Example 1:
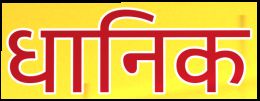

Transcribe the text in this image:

धानिक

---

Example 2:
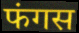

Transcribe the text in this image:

फंगस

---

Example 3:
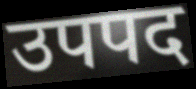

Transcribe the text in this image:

उपपद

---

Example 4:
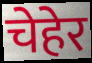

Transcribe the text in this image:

चेहेर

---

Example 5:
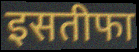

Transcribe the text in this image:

इसतीफा